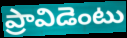
ప్రావిడెంటు